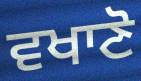
ਵਖਾਣੋ